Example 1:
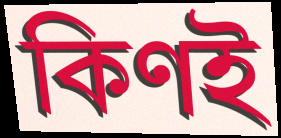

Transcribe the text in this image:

কিণই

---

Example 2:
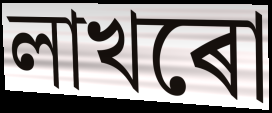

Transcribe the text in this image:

লাখৰো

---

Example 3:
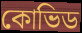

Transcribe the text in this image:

কোভিড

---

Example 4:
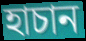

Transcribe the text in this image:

হাচান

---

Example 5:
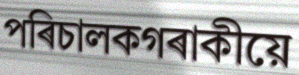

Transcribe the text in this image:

পৰিচালকগৰাকীয়ে